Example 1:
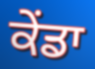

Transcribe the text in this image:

ਕੇਂਡਾ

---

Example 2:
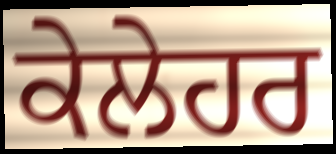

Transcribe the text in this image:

ਕੇਲੇਹਰ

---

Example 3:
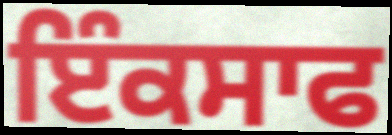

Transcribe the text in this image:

ਇੰਕਸਾਫ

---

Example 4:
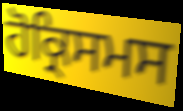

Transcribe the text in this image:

ਹੋਕ੍ਰਿਸਮਸ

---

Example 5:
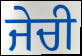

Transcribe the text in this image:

ਜੇਚੀ